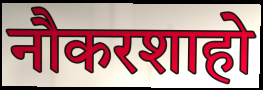
नौकरशाहो